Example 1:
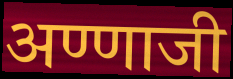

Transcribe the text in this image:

अण्णाजी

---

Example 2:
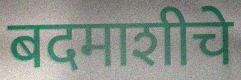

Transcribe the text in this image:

बदमाशीचे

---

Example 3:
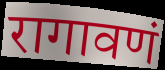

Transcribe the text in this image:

रागावणं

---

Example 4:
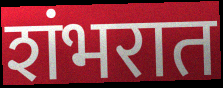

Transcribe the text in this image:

शंभरात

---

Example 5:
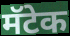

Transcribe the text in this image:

मॅटेक